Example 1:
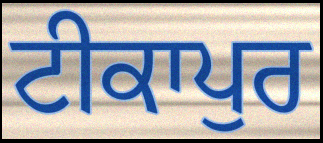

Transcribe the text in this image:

ਟੀਕਾਪੁਰ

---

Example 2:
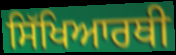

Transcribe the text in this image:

ਸਿੱਖਿਆਰਥੀ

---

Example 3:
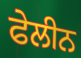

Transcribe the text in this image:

ਫੇਲੀਨ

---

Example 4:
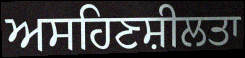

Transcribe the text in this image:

ਅਸਹਿਣਸ਼ੀਲਤਾ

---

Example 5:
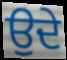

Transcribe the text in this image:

ਉਦੇ